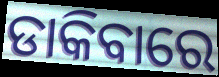
ଡାକିବାରେ